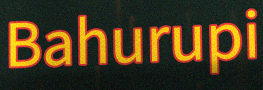
Bahurupi